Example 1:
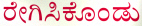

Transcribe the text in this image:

ರೇಗಿಸಿಕೊಂಡು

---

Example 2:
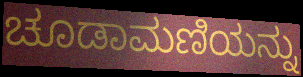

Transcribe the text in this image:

ಚೂಡಾಮಣಿಯನ್ನು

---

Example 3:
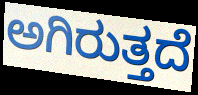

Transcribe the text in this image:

ಅಗಿರುತ್ತದೆ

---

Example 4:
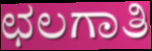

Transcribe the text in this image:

ಛಲಗಾತಿ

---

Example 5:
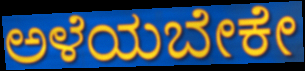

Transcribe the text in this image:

ಅಳೆಯಬೇಕೇ